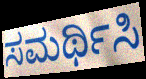
ಸಮರ್ಥಿಸಿ